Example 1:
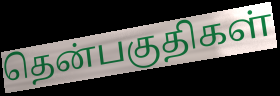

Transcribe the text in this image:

தென்பகுதிகள்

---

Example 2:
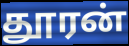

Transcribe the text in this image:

தூரன்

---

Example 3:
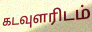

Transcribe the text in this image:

கடவுளரிடம்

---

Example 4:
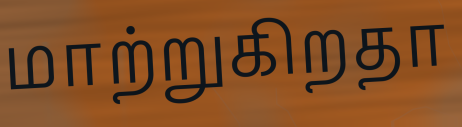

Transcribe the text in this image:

மாற்றுகிறதா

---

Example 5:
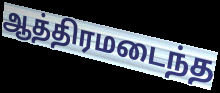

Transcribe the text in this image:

ஆத்திரமடைந்த